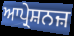
ਆਪ੍ਰੇਸ਼ਨਜ਼